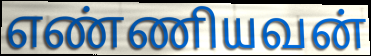
எண்ணியவன்